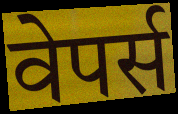
वेपर्स